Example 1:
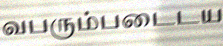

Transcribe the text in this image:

வபரும்படைடய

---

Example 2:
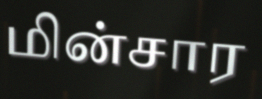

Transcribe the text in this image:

மின்சார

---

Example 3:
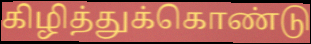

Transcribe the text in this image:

கிழித்துக்கொண்டு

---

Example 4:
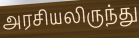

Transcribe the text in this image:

அரசியலிருந்து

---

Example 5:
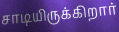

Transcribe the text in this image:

சாடியிருக்கிறார்